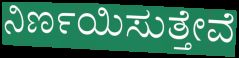
ನಿರ್ಣಯಿಸುತ್ತೇವೆ